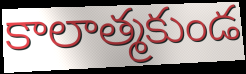
కాలాత్మకుండ